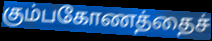
கும்பகோணத்தைச்